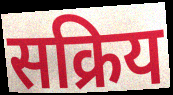
सक्रिय